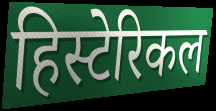
हिस्टेरिकल